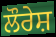
ਲੌਰੇਸ਼